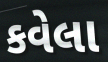
કવેલા